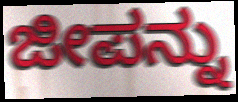
ಜೀಪನ್ನು